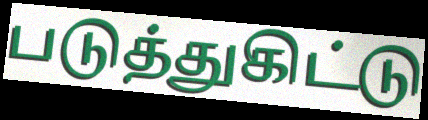
படுத்துகிட்டு